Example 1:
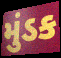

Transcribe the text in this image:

મુંડક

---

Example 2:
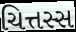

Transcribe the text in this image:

ચિત્તસ્સ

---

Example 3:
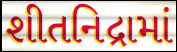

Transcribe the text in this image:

શીતનિદ્રામાં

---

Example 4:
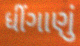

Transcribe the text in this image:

ધીંગાણું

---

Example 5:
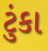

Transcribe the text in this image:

ટુંકા